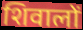
शिवालों